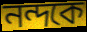
নন্দকে